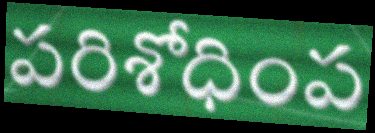
పరిశోధింప